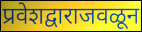
प्रवेशद्वाराजवळून